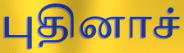
புதினாச்